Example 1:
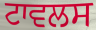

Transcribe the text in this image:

ਟਾਵਲਸ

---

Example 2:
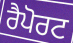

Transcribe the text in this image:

ਰੈਪੋਰਟ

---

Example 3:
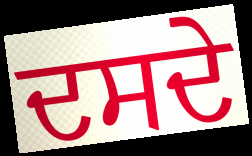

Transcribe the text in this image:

ਦਸਦੇ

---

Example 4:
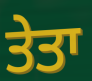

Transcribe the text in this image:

ਤੇਤਾ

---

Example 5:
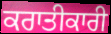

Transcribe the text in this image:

ਕਰਾਤੀਕਾਰੀ